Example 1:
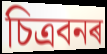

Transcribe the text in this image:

চিত্ৰবনৰ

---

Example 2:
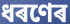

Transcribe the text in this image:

ধৰণেৰ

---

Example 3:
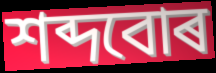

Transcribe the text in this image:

শব্দবোৰ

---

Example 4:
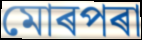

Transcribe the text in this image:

মোৰপৰা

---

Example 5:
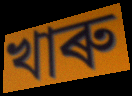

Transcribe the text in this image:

খাৰু